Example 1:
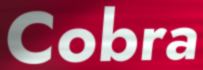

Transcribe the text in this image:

Cobra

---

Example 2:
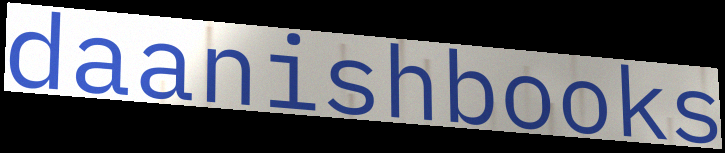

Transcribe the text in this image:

daanishbooks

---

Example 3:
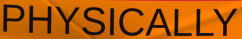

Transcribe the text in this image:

PHYSICALLY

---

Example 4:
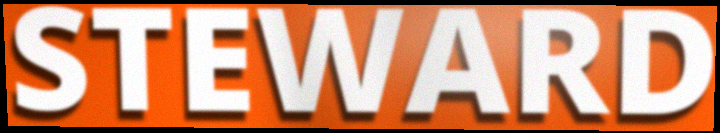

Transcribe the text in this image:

STEWARD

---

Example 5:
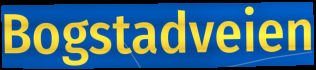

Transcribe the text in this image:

Bogstadveien